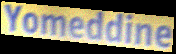
Yomeddine